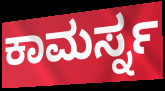
ಕಾಮರ್ಸ್ನ